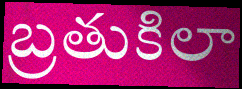
బ్రతుకిలా